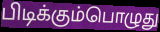
பிடிக்கும்பொழுது